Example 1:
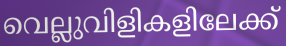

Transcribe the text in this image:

വെല്ലുവിളികളിലേക്ക്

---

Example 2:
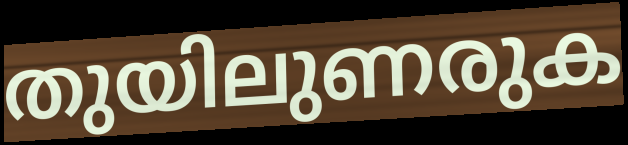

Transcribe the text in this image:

തുയിലുണരുക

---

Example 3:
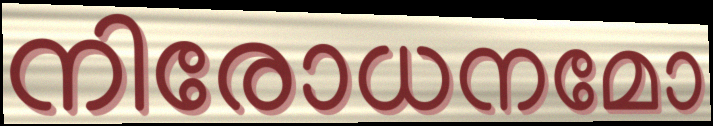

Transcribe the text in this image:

നിരോധനമോ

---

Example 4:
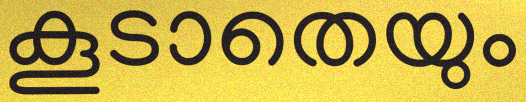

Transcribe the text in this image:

കൂടാതെയും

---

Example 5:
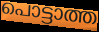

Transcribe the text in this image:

പൊട്ടാത്ത